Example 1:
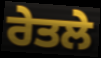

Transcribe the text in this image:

ਰੇਤਲੇ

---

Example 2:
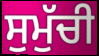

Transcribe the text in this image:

ਸੁਮੁੱਚੀ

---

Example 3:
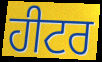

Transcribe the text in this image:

ਹੀਟਰ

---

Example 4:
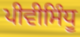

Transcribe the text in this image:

ਪੀਵੀਸਿੰਧੂ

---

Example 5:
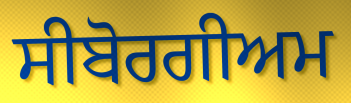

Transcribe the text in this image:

ਸੀਬੋਰਗੀਅਮ